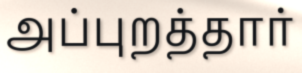
அப்புறத்தார்